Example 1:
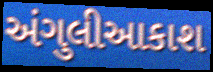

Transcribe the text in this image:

અંગુલીઆકાશ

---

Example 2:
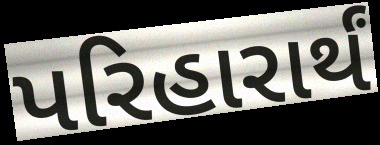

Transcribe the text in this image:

પરિહારાર્થં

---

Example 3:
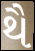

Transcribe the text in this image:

થૈ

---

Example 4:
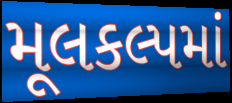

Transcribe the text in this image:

મૂલકલ્પમાં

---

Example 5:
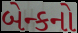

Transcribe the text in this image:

બેન્કનો